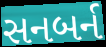
સનબર્ન